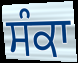
ਸੰਕਾ